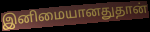
இனிமையானதுதான்